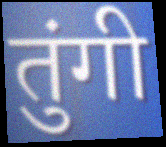
तुंगी